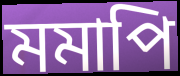
মমাপি